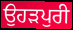
ਉਹੜਪੁਰੀ